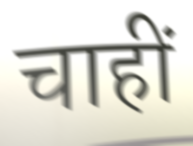
चाहीं